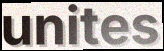
unites